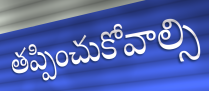
తప్పించుకోవాల్సి